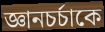
জ্ঞানচর্চাকে